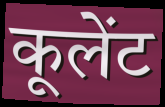
कूलेंट